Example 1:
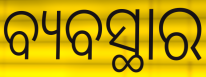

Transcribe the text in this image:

ବ୍ୟବସ୍ଥାର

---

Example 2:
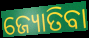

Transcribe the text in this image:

ଜ୍ୟୋତିବା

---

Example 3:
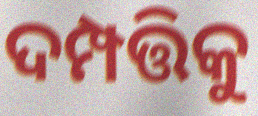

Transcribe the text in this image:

ଦମ୍ପତ୍ତିକୁ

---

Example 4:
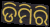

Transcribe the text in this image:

ଡିମିରି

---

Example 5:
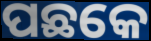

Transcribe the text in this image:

ପଛକେ